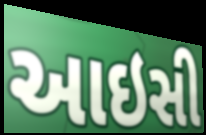
આઇસી